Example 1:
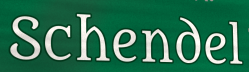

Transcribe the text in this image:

Schendel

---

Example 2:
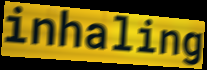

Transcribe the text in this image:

inhaling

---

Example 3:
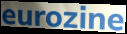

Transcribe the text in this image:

eurozine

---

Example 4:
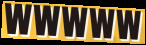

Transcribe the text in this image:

wwwww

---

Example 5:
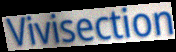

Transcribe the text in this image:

Vivisection